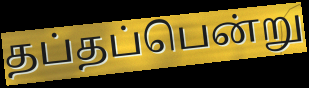
தப்தப்பென்று